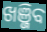
ଖଞ୍ଜିବ